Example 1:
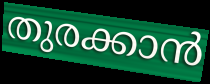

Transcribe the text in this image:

തുരക്കാൻ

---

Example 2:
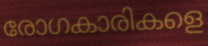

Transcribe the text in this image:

രോഗകാരികളെ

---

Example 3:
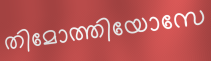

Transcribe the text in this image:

തിമോത്തിയോസേ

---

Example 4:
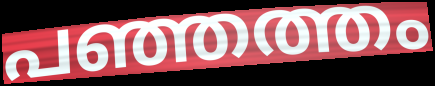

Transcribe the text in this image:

പഞ്ഞത്തം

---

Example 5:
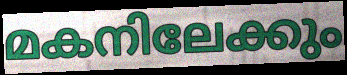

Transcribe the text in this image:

മകനിലേക്കും